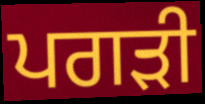
ਪਗੜੀ